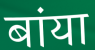
बांया